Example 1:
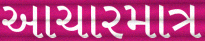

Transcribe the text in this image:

આચારમાત્ર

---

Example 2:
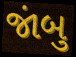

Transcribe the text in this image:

જાંબુ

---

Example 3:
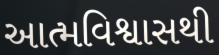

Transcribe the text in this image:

આત્મવિશ્વાસથી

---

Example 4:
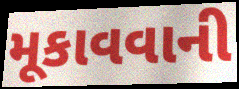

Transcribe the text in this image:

મૂકાવવાની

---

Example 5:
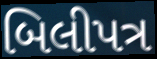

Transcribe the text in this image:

બિલીપત્ર